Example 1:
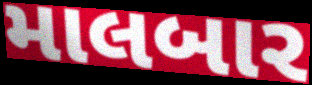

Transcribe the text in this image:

માલબાર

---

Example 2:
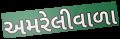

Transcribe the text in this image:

અમરેલીવાળા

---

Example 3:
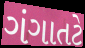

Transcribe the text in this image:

ગંગાતટે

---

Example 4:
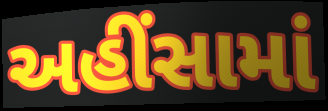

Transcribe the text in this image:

અહીંસામાં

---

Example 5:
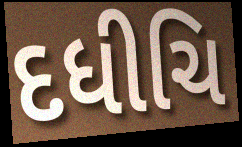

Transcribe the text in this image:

દધીચિ